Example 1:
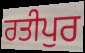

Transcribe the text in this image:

ਰਤੀਪੁਰ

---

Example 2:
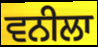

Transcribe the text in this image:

ਵਨੀਲਾ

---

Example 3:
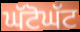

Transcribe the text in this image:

ਘੱਟੋਘੱਟ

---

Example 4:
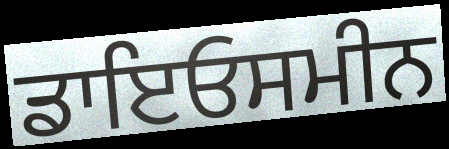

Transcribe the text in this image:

ਡਾਇਓਸਮੀਨ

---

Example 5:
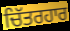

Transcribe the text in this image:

ਚਿੱਤਰਹਾਰ